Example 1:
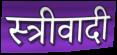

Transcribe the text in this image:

स्त्रीवादी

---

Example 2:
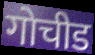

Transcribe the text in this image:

गोचीड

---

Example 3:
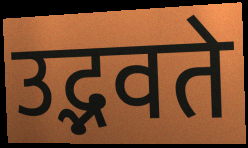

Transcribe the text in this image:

उद्भवते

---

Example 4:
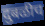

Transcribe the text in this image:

दुबळीच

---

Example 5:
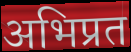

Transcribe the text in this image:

अभिप्रत